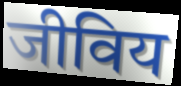
जीविय